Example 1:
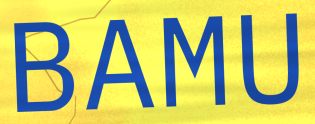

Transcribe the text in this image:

BAMU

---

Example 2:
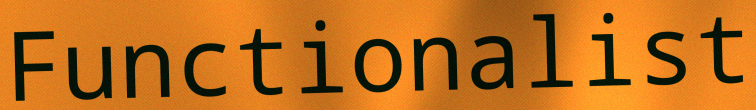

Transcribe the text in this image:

Functionalist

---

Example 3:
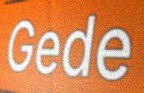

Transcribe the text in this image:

Gede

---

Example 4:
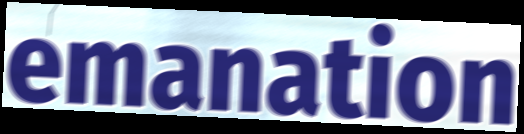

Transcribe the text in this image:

emanation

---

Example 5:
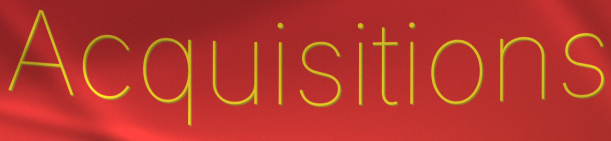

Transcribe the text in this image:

Acquisitions